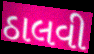
ઠાલવી